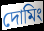
দোমিং